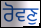
ਰੋਵਣੁ